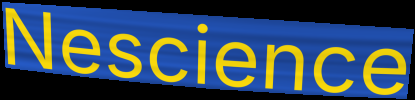
Nescience